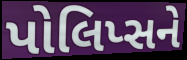
પોલિપ્સને